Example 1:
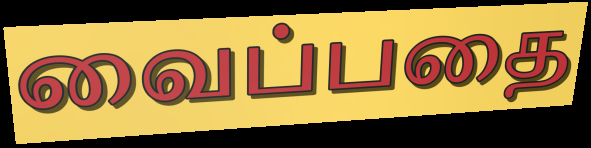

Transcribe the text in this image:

வைப்பதை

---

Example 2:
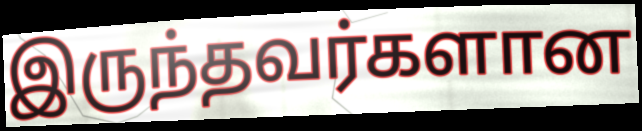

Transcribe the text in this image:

இருந்தவர்களான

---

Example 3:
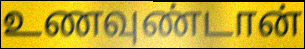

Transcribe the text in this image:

உணவுண்டான்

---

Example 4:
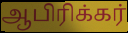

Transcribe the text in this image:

ஆபிரிக்கர்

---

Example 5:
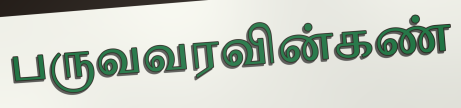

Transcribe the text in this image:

பருவவரவின்கண்